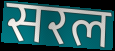
सरल